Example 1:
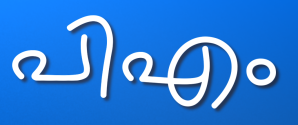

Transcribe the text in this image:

പിഎം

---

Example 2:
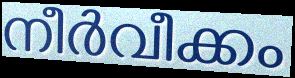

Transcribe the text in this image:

നീർവീക്കം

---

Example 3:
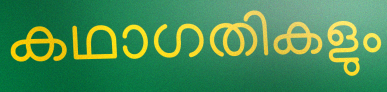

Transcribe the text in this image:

കഥാഗതികളും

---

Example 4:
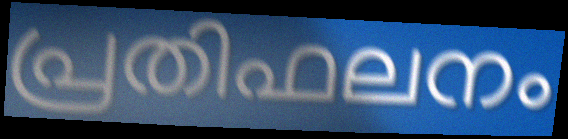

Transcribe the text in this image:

പ്രതിഫലനം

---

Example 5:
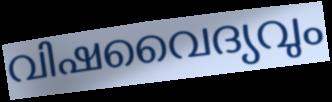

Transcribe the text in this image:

വിഷവൈദ്യവും